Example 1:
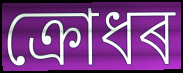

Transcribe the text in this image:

ক্ৰোধৰ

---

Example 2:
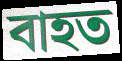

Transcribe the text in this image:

বাহত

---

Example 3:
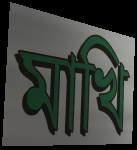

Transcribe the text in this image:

মাখি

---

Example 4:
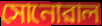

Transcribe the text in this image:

সোনোৱাল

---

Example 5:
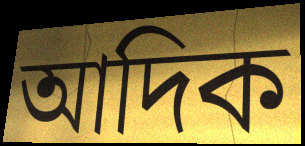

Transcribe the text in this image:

আদিক